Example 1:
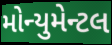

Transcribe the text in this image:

મોન્યુમેન્ટલ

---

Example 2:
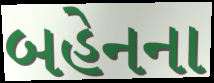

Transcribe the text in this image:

બહેનના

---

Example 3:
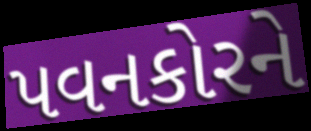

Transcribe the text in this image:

પવનકોરને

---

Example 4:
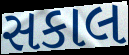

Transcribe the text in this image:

સકાલ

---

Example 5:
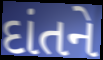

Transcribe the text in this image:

દાંતને